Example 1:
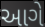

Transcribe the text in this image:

આગે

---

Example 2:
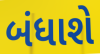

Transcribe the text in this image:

બંધાશે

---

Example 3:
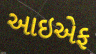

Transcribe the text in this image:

આઇએફ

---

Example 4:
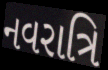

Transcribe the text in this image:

નવરાત્રિ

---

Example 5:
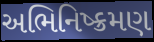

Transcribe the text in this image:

અભિનિષ્ક્રમણ